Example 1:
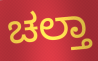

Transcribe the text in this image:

ಚಲ್ತಾ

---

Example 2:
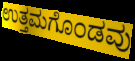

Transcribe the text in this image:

ಉತ್ತಮಗೊಂಡವು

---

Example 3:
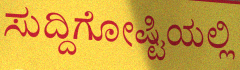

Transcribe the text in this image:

ಸುದ್ದಿಗೋಷ್ಟಿಯಲ್ಲಿ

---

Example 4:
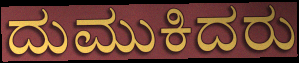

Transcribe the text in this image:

ದುಮುಕಿದರು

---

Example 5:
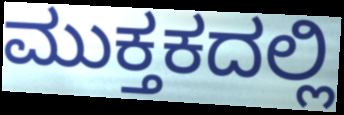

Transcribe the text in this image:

ಮುಕ್ತಕದಲ್ಲಿ